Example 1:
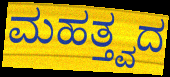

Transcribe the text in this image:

ಮಹತ್ತ್ವದ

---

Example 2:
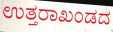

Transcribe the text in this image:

ಉತ್ತರಾಖಂಡದ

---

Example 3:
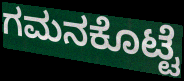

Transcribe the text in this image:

ಗಮನಕೊಟ್ಟೆ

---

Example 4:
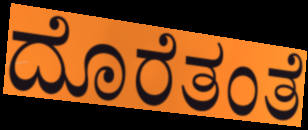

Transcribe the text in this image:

ದೊರೆತಂತೆ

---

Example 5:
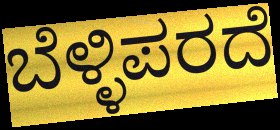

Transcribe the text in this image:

ಬೆಳ್ಳಿಪರದೆ